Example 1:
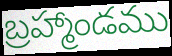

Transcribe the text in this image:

బ్రహ్మాండము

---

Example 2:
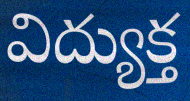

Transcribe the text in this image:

విద్యుక్త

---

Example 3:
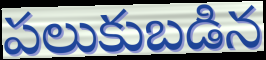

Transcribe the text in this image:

పలుకుబడిన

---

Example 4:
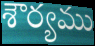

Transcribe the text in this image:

శౌర్యము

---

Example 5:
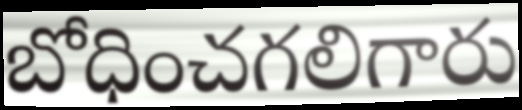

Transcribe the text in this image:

బోధించగలిగారు